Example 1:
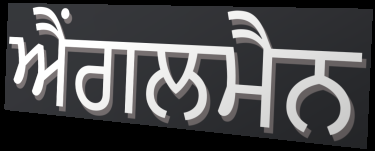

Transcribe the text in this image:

ਐਂਗਲਮੈਨ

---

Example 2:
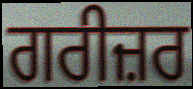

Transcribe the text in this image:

ਗਰੀਜ਼ਰ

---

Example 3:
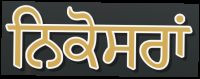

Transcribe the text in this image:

ਨਿਕੋਸਰਾਂ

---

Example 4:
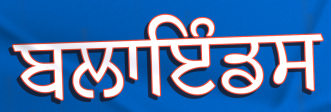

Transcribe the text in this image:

ਬਲਾਇੰਡਸ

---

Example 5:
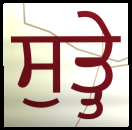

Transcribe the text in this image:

ਸੁਤ੍ਤੇ